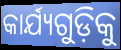
କାର୍ଯ୍ୟଗୁଡ଼ିକୁ